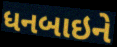
ધનબાઇને